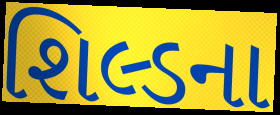
શિલ્ડના